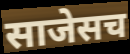
साजेसच